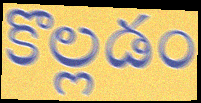
కొల్లడం